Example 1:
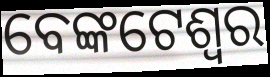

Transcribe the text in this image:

ବେଙ୍କଟେଶ୍ୱର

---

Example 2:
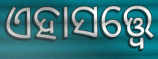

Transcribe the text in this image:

ଏହାସତ୍ତ୍ବେ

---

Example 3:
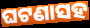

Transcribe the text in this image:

ଘଟଣାସହ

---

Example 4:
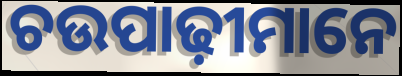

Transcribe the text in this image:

ଚଉପାଢ଼ୀମାନେ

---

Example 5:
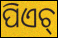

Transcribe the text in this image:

ପିଏଚ୍